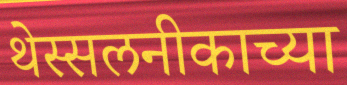
थेस्सलनीकाच्या